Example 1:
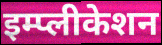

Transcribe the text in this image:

इम्प्लीकेशन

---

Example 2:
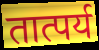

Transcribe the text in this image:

तात्पर्य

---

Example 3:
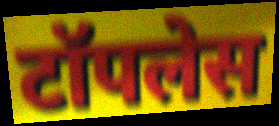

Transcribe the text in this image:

टॉपलेस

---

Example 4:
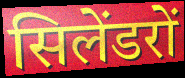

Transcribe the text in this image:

सिलेंडरों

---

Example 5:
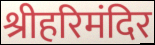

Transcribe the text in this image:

श्रीहरिमंदिर